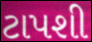
ટાપશી